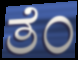
ತೆಂ